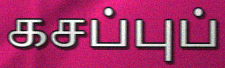
கசப்புப்